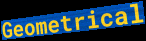
Geometrical